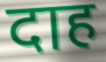
दाह